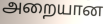
அறையான